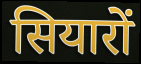
सियारों